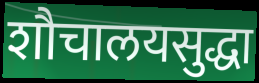
शौचालयसुद्धा